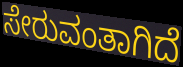
ಸೇರುವಂತಾಗಿದೆ